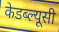
केडब्ल्यूसी